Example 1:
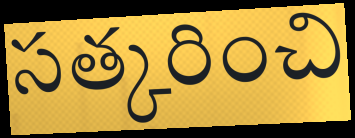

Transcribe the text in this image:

సత్కరించి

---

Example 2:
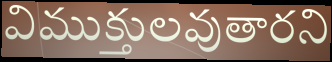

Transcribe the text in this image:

విముక్తులవుతారని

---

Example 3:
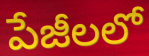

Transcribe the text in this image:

పేజీలలో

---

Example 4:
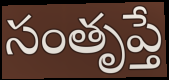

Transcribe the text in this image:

సంతృప్తే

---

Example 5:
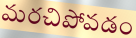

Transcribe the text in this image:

మరచిపోవడం